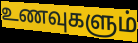
உணவுகளும்